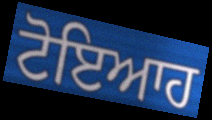
ਟੋਇਆਹ